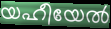
യഹീയേൽ